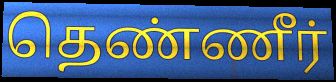
தெண்ணீர்